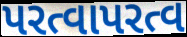
પરત્વાપરત્વ